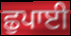
ਛੁਪਾਈ